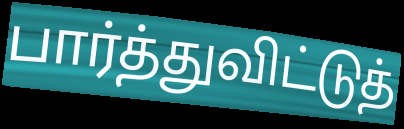
பார்த்துவிட்டுத்